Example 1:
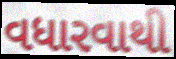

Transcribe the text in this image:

વધારવાથી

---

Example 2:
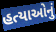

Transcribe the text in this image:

હત્યાઓનું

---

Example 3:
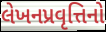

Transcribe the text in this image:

લેખનપ્રવૃત્તિનો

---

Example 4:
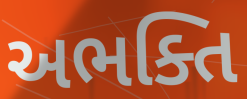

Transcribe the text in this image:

અભક્તિ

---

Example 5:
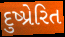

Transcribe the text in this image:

દુષ્પ્રેરિત